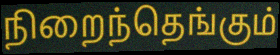
நிறைந்தெங்கும்